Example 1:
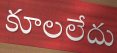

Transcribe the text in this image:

కూలలేదు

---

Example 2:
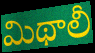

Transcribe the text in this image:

మిథాలీ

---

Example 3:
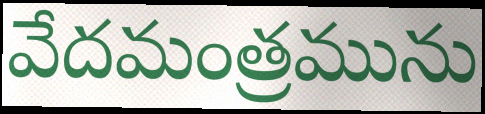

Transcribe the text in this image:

వేదమంత్రమును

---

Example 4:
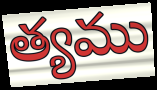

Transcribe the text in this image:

త్యము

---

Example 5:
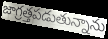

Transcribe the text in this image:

జాగ్రత్తపడుతున్నాను